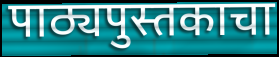
पाठ्यपुस्तकाचा